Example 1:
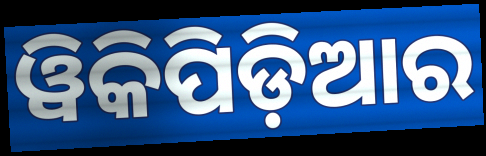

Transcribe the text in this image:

ୱିକିପିଡ଼ିଆର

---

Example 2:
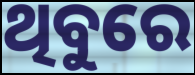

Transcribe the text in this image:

ଥିବୁରେ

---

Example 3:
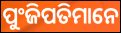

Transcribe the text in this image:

ପୁଂଜିପତିମାନେ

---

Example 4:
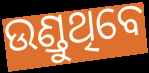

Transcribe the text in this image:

ଉଣ୍ଡୁଥିବେ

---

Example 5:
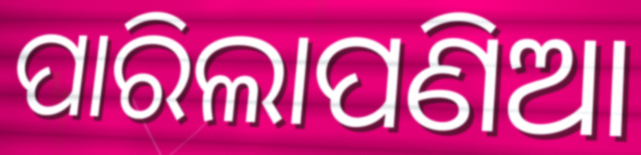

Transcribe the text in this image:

ପାରିଲାପଣିଆ